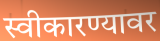
स्वीकारण्यावर